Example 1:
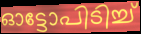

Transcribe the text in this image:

ഓട്ടോപിടിച്ച്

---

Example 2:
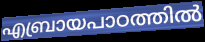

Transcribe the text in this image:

എബ്രായപാഠത്തിൽ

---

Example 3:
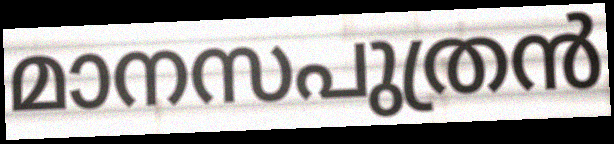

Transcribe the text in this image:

മാനസപുത്രൻ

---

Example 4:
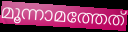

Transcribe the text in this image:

മൂന്നാമത്തേത്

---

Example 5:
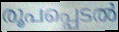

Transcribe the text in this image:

രൂപപ്പെടൽ